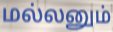
மல்லனும்